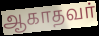
ஆகாதவர்